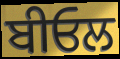
ਬੀਓਲ